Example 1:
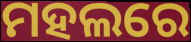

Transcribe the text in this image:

ମହଲରେ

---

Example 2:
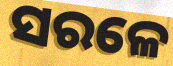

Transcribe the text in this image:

ସରଳେ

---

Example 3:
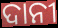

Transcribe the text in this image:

ଦାନୀ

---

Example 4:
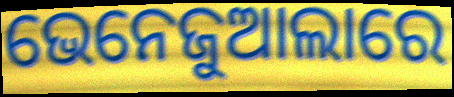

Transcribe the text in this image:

ଭେନେଜୁଆଲାରେ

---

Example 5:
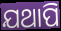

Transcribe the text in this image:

ଯଥାପି